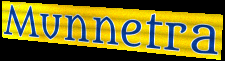
Munnetra